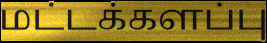
மட்டக்களப்பு